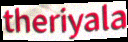
theriyala